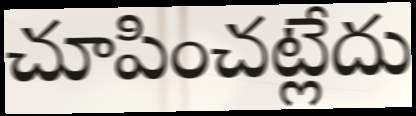
చూపించట్లేదు